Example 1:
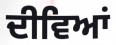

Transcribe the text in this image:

ਦੀਵਿਆਂ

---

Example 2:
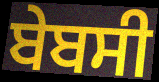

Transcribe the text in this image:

ਬੇਬਸੀ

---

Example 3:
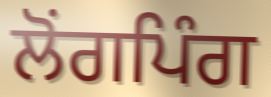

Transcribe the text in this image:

ਲੋਂਗਪਿੰਗ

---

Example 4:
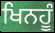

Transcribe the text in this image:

ਖਿਨਹੂੰ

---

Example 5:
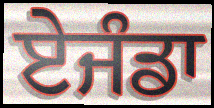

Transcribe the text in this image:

ਏਜੰਡਾ